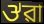
ঔৱা